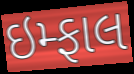
ઇમ્ફાલ